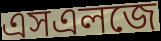
এসএলজে